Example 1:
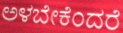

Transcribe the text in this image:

ಅಳಬೇಕೆಂದರೆ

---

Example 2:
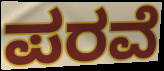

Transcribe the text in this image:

ಪರವೆ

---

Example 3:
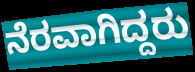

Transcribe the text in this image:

ನೆರವಾಗಿದ್ದರು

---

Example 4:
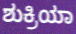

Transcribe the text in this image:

ಶುಕ್ರಿಯಾ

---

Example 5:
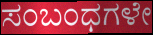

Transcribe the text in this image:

ಸಂಬಂಧಗಳೇ